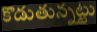
కొడుతున్నట్టు